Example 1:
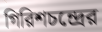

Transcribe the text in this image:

গিরিশচন্দ্রের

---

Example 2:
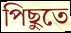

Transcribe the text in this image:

পিছুতে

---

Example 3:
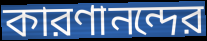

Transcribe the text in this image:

কারণানন্দের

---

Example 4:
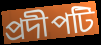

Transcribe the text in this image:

প্রদীপটি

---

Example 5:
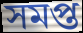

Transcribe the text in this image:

সমপ্ত